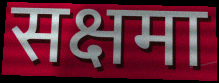
सक्षमा